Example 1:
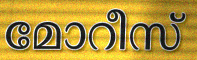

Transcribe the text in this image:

മോറീസ്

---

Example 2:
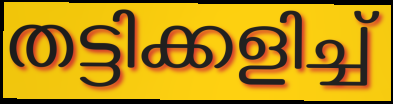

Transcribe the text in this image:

തട്ടിക്കളിച്ച്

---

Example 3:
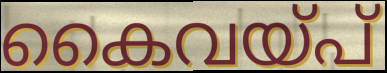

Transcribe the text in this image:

കൈവയ്പ്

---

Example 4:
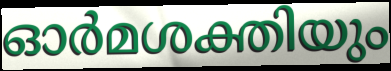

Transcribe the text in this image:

ഓർമശക്തിയും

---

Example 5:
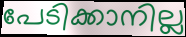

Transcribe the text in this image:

പേടിക്കാനില്ല